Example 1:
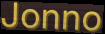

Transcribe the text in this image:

Jonno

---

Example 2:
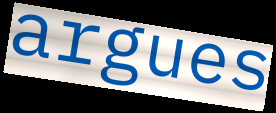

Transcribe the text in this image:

argues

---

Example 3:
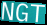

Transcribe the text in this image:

NGT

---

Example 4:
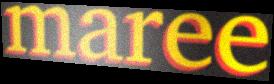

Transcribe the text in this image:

maree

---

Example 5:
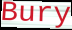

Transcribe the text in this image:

Bury